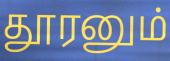
தூரனும்